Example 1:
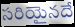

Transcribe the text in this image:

సరియైనదే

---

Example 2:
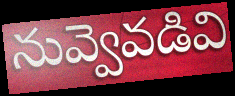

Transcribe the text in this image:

నువ్వెవడివి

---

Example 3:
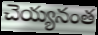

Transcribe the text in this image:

చెయ్యనంత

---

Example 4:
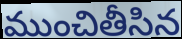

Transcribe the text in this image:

ముంచితీసిన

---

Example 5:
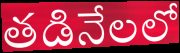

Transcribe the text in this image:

తడినేలలో